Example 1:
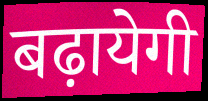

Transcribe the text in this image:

बढ़ायेगी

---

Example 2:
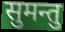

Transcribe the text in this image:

सुमन्तु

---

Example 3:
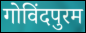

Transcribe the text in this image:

गोविंदपुरम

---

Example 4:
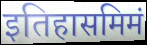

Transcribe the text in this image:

इतिहासमिमं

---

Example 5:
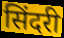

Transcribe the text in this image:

सिंदरी